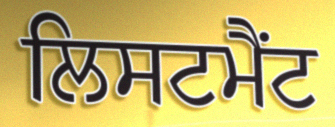
ਲਿਸਟਮੈਂਟ